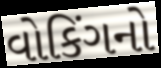
વોકિંગનો